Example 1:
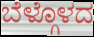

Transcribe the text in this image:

ಬೆಳ್ಗೊಳದ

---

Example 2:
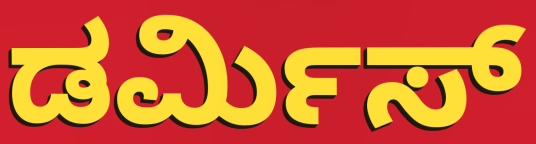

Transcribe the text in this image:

ಡರ್ಮಿಸ್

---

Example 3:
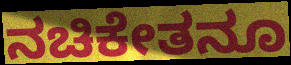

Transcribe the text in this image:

ನಚಿಕೇತನೂ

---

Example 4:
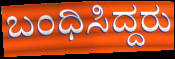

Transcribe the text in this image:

ಬಂಧಿಸಿದ್ದರು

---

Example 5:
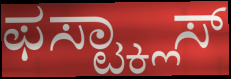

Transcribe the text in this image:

ಫಸ್ಟ್ಕ್ಲಾಸ್